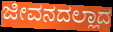
ಜೀವನದಲ್ಲಾದ